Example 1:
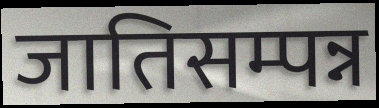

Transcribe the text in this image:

जातिसम्पन्न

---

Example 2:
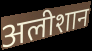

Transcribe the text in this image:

अलीशान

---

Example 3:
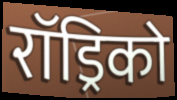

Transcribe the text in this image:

रॉड्रिको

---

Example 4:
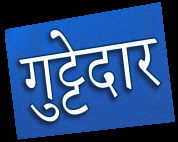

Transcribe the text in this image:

गुट्टेदार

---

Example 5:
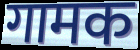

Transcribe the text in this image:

गामक